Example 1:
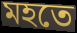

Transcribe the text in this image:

মহতে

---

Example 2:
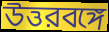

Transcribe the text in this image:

উত্তরবঙ্গে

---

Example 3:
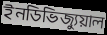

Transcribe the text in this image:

ইনডিভিজ্যুয়াল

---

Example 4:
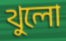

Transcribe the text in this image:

থুলো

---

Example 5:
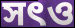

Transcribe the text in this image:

সৎও